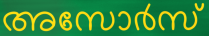
അസോർസ്